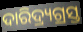
ଦାରିଦ୍ର୍ୟଗ୍ରସ୍ତ